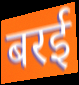
बरई